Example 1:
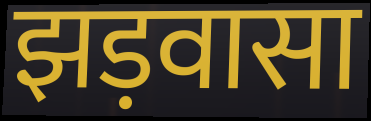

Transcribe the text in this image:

झड़वासा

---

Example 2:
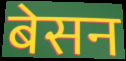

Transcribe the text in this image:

बेसन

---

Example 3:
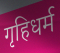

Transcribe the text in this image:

गृहिधर्म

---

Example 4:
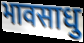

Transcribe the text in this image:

भावसाधु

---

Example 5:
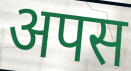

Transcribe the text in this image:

अपस